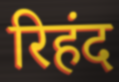
रिहंद